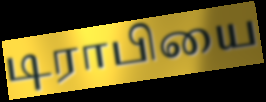
டிராபியை